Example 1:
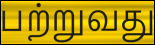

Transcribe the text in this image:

பற்றுவது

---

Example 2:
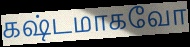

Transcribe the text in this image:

கஷ்டமாகவோ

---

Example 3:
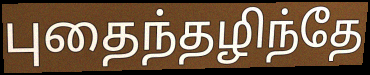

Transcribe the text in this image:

புதைந்தழிந்தே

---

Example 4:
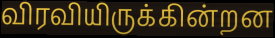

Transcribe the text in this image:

விரவியிருக்கின்றன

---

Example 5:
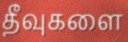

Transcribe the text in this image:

தீவுகளை